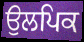
ਉਲਪਿਕ